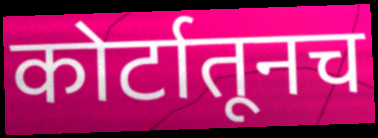
कोर्टातूनच